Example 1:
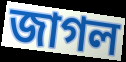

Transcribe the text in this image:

জাগল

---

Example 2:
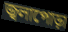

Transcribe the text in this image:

জ্বলাপোড়া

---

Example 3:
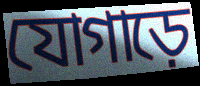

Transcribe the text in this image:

যোগাড়ে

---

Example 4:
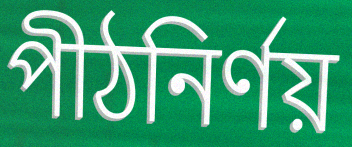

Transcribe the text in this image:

পীঠনির্ণয়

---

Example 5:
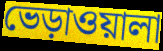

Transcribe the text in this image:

ভেড়াওয়ালা